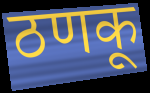
ठणकू